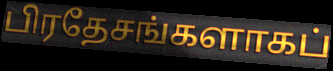
பிரதேசங்களாகப்